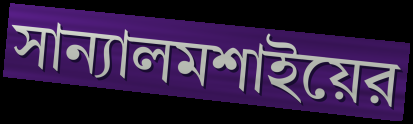
সান্যালমশাইয়ের